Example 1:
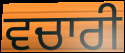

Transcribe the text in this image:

ਵਚਾਰੀ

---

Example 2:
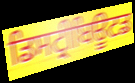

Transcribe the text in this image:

ਡਿਸਟ੍ਰੀਬਿਊਟਡ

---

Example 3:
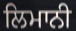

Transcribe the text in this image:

ਲਿਮਾਨੀ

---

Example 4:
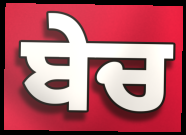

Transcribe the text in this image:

ਬੇਚ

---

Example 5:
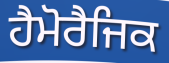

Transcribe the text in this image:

ਹੈਮੋਰੈਜਿਕ